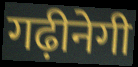
गढ़ीनेगी